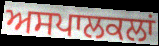
ਅਸਪਾਲਕਲਾਂ